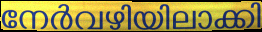
നേർവഴിയിലാക്കി